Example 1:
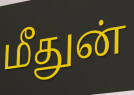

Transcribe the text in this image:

மீதுன்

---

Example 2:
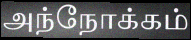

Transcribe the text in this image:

அந்நோக்கம்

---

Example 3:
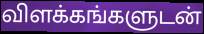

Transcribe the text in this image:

விளக்கங்களுடன்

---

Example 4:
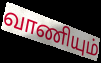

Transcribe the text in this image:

வாணியும்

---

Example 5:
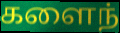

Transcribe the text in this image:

களைந்